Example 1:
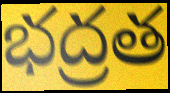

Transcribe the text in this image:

భద్రత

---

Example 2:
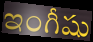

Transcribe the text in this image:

ఇంగీషు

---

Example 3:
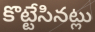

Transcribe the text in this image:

కొట్టేసినట్లు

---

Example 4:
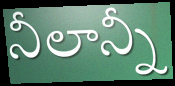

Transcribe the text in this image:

నీలాన్నీ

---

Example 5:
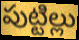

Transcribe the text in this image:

పుట్టిల్లు